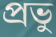
প্রভু